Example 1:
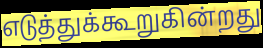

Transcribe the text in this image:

எடுத்துக்கூறுகின்றது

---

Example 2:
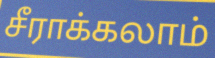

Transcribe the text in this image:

சீராக்கலாம்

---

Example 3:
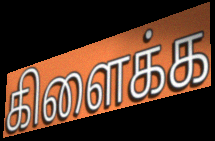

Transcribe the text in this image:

கிளைக்க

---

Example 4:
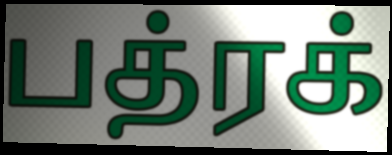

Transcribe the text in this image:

பத்ரக்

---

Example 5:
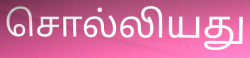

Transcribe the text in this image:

சொல்லியது